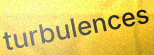
turbulences